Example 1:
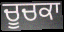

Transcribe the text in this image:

ਚੂਚਕਾ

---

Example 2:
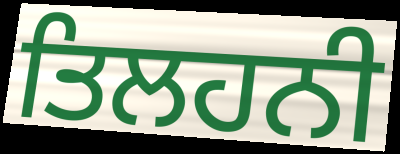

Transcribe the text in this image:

ਤਿਲਹਨੀ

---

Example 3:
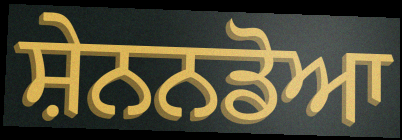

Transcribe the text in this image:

ਸ਼ੇਨਨਡੋਆ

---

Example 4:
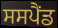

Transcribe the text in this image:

ਸਸਪੈੰਡ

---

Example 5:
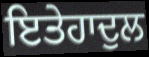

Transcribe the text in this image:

ਇਤੇਹਾਦੁਲ